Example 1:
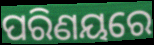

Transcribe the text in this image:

ପରିଣୟରେ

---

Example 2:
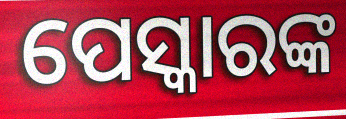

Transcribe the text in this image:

ପେସ୍କାରଙ୍କ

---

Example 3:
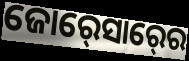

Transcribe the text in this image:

ଜୋର୍‍ସୋର୍‍ରେ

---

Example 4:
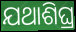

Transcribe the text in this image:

ଯଥାଶିଘ୍ର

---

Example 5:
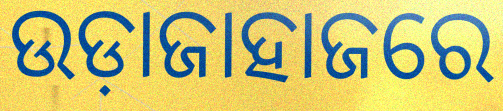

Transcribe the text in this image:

ଉଡ଼ାଜାହାଜରେ